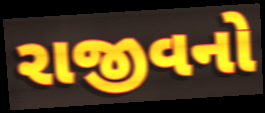
રાજીવનો